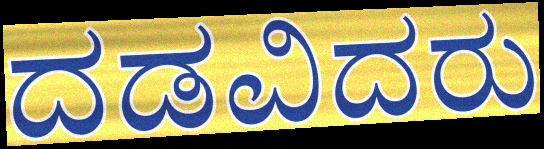
ದಡವಿದರು